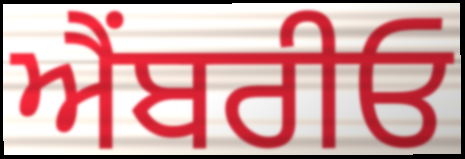
ਐਂਬਰੀਓ